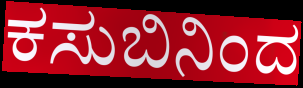
ಕಸುಬಿನಿಂದ